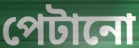
পেটানো